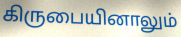
கிருபையினாலும்